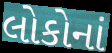
લોકોનાં